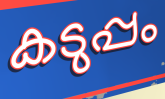
കടുപ്പം